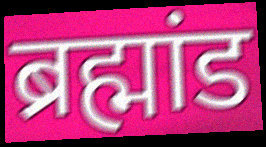
ब्रह्मांड